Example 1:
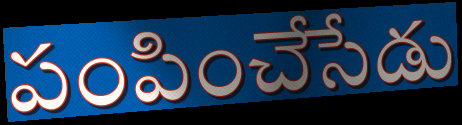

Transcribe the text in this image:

పంపించేసేడు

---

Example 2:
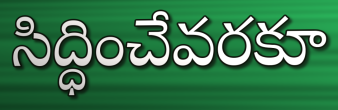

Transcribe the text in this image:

సిద్ధించేవరకూ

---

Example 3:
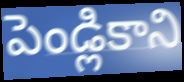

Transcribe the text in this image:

పెండ్లికాని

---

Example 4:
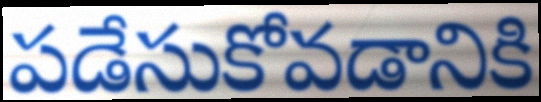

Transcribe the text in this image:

పడేసుకోవడానికి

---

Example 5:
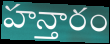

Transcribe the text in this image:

హన్తారం